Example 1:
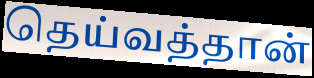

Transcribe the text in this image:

தெய்வத்தான்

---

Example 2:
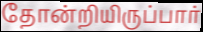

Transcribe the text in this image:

தோன்றியிருப்பார்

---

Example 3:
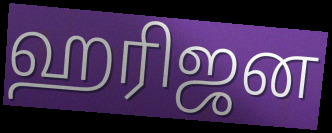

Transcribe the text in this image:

ஹரிஜன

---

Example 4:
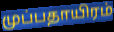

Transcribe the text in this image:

முப்பதாயிரம்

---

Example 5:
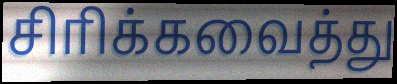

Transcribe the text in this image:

சிரிக்கவைத்து